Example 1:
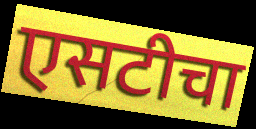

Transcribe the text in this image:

एसटीचा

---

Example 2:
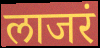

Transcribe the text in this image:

लाजरं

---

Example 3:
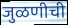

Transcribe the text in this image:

जुळणीची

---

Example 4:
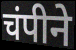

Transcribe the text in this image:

चंपीने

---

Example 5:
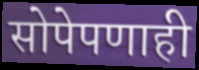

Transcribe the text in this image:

सोपेपणाही